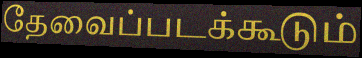
தேவைப்படக்கூடும்